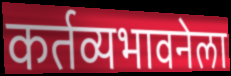
कर्तव्यभावनेला